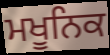
ਮਖੂਨਿਕ